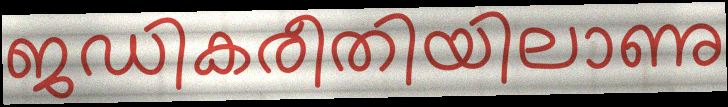
ജഡികരീതിയിലാണു